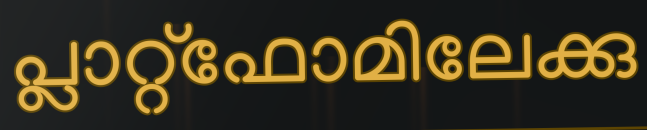
പ്ലാറ്റ്ഫോമിലേക്കു